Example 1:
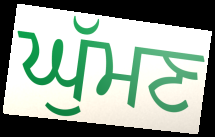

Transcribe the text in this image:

ਘੁੱਮਣ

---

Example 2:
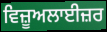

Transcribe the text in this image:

ਵਿਜ਼ੂਅਲਾਈਜ਼ਰ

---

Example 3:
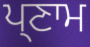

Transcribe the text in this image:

ਪ੍ਣਾਮ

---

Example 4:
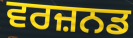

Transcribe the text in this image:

ਵਰਜ਼ਨਡ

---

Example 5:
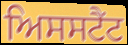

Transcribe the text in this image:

ਅਿਸਸਟੈਂਟ